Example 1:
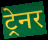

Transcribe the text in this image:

ट्रेनर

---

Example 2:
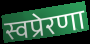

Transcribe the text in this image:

स्वप्रेरणा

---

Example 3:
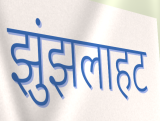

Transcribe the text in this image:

झुंझलाहट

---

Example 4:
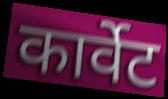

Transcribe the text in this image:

कार्वेट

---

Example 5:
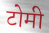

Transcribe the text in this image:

टोमी